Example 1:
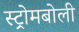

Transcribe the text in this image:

स्ट्रोमबोली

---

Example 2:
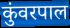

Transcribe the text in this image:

कुंवरपाल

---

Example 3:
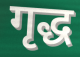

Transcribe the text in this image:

गृद्ध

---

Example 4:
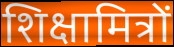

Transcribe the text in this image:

शिक्षामित्रों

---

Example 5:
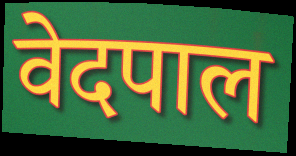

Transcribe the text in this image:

वेदपाल